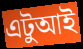
এটুআই